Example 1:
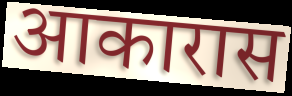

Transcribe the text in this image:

आकारास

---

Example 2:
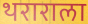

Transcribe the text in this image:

थराराला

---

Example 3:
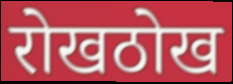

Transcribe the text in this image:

रोखठोख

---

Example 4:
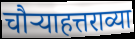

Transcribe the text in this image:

चौऱ्याहत्तराव्या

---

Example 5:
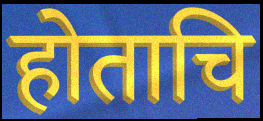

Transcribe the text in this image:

होताचि